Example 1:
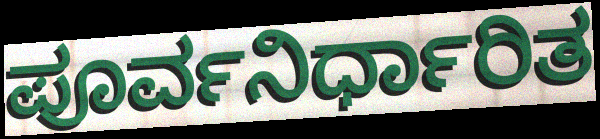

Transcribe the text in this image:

ಪೂರ್ವನಿರ್ಧಾರಿತ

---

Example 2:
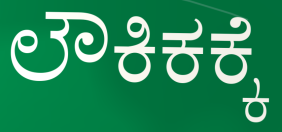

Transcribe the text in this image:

ಲೌಕಿಕಕ್ಕೆ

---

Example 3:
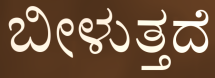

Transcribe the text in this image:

ಬೀಳುತ್ತದೆ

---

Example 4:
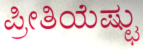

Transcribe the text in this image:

ಪ್ರೀತಿಯೆಷ್ಟು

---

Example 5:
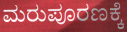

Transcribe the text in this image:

ಮರುಪೂರಣಕ್ಕೆ